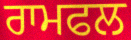
ਰਾਮਫਲ